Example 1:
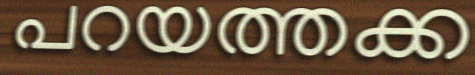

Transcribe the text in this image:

പറയത്തക്ക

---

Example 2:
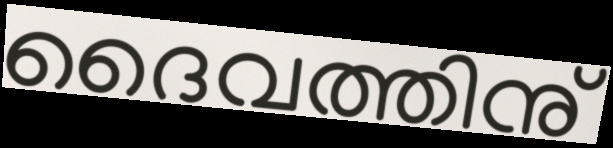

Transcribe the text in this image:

ദൈവത്തിനു്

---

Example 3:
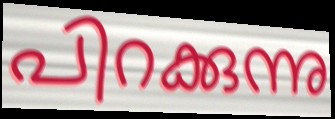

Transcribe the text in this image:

പിറക്കുന്നു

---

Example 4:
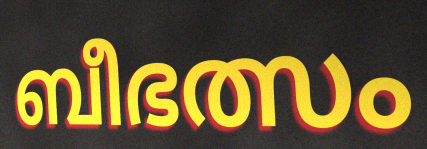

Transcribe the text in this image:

ബീഭത്സം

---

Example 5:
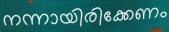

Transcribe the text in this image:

നന്നായിരിക്കേണം